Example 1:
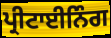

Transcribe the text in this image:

ਪ੍ਰੀਟਾਈਨਿੰਗ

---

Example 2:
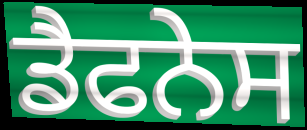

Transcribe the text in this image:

ਡੈਫਨੇਸ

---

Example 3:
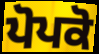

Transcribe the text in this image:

ਪੋਪਕੋ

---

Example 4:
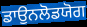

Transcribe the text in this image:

ਡਾਉਨਲੋਡਯੋਗ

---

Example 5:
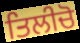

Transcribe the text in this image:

ਤਿਲੀਚੋ